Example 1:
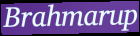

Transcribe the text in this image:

Brahmarup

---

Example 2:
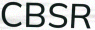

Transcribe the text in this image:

CBSR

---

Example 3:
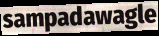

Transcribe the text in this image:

sampadawagle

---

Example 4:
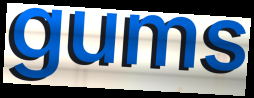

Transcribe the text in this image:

gums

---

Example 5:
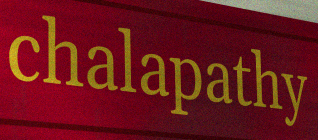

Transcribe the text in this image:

chalapathy